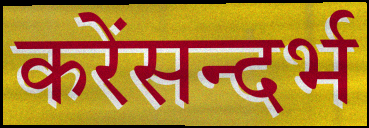
करेंसन्दर्भ